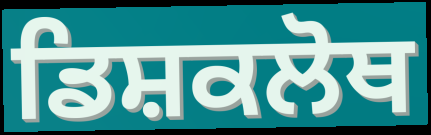
ਡਿਸ਼ਕਲੋਥ